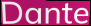
Dante